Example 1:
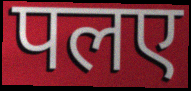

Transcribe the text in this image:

पलए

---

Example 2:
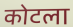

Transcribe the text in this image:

कोटला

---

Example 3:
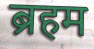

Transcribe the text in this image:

ब्रहम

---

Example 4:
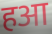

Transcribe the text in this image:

हआ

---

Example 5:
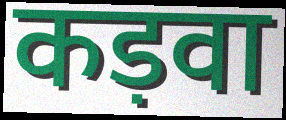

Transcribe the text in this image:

कड़वा